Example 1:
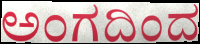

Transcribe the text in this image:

ಅಂಗದಿಂದ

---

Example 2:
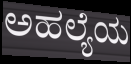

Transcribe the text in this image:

ಅಹಲ್ಯೆಯ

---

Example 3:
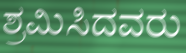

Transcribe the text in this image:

ಶ್ರಮಿಸಿದವರು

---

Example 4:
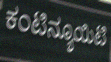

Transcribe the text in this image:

ಕಂಟಿನ್ಯೂಯಿಟಿ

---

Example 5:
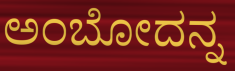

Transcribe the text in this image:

ಅಂಬೋದನ್ನ